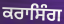
ਕਰਾਸਿੰਗ